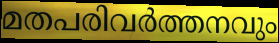
മതപരിവർത്തനവും